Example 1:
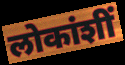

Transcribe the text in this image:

लोकांशीं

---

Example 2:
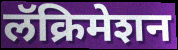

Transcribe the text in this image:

लॅक्रिमेशन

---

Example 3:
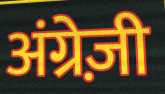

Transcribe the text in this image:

अंग्रेज़ी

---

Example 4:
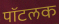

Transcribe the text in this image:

पॉटलक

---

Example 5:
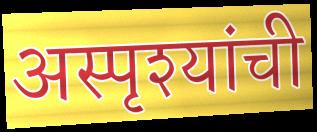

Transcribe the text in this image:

अस्पृश्यांची